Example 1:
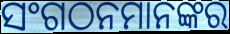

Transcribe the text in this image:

ସଂଗଠନମାନଙ୍କର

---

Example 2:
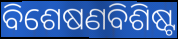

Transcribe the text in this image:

ବିଶେଷଣବିଶିଷ୍ଟ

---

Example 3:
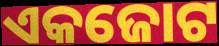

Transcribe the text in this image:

ଏକଜୋଟ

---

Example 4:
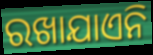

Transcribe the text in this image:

ରଖାଯାଏନି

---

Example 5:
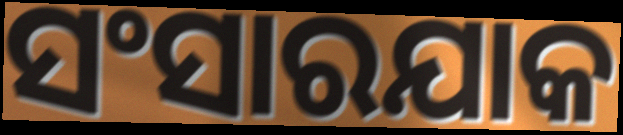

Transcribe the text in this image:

ସଂସାରଯାକ